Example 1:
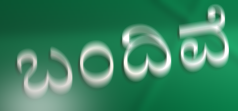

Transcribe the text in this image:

ಬಂದಿವೆ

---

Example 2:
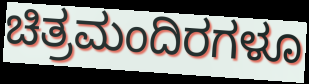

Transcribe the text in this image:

ಚಿತ್ರಮಂದಿರಗಳೂ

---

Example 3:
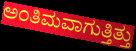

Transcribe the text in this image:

ಅಂತಿಮವಾಗುತ್ತಿತ್ತು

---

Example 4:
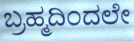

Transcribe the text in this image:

ಬ್ರಹ್ಮದಿಂದಲೇ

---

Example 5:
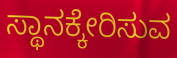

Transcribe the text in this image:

ಸ್ಥಾನಕ್ಕೇರಿಸುವ